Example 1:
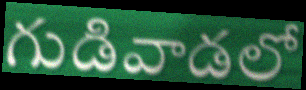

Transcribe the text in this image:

గుడివాడలో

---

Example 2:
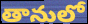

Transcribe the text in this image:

తానులో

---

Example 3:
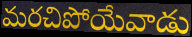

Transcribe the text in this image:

మరచిపోయేవాడు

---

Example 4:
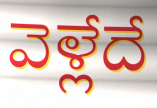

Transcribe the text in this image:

వెళ్లేదే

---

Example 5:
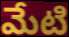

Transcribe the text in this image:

మేటి